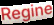
Regine